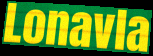
Lonavla